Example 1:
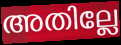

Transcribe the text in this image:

അതില്ലേ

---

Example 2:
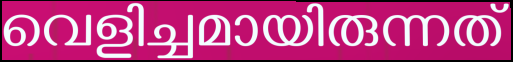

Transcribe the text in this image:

വെളിച്ചമായിരുന്നത്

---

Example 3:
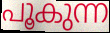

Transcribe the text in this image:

പൂകുന്ന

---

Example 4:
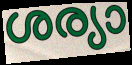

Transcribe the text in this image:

ശര്യാ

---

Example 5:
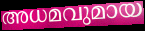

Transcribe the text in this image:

അധമവുമായ